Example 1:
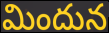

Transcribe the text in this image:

మిందున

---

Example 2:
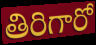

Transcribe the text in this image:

తిరిగారో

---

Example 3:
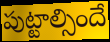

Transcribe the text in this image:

పుట్టాల్సిందే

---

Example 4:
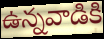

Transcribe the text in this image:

ఉన్నవాడికి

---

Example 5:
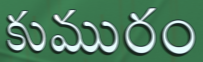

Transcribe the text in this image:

కుమురం